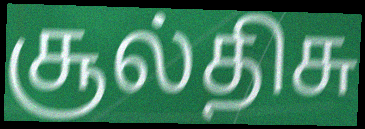
சூல்திசு